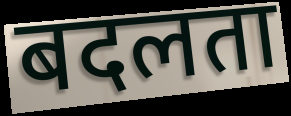
बदलता